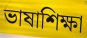
ভাষাশিক্ষা